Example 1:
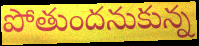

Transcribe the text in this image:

పోతుందనుకున్న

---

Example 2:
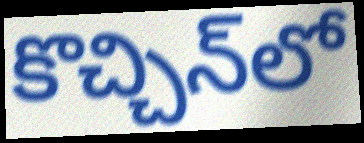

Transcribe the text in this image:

కొచ్చిన్‌లో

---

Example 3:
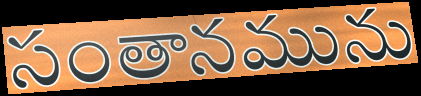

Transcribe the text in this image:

సంతానమును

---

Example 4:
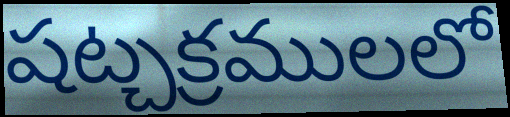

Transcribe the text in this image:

షట్చక్రములలో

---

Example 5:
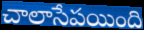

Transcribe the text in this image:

చాలాసేపయింది